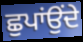
ਛੁਪਾਂਉਂਦੇ